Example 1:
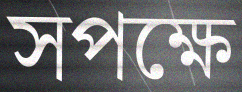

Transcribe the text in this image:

সপক্ষে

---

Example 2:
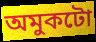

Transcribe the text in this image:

অমুকটো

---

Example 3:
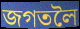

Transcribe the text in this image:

জগতলৈ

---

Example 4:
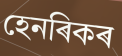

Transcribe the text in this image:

হেনৰিকৰ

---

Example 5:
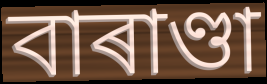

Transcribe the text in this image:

বাৰাণ্ডা